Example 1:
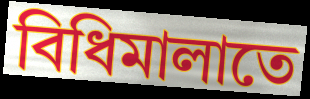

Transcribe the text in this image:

বিধিমালাতে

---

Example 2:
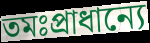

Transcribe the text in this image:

তমঃপ্রাধান্যে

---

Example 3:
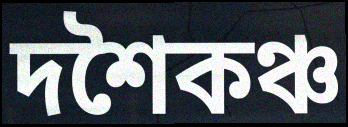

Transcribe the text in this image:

দশৈকঞ্চ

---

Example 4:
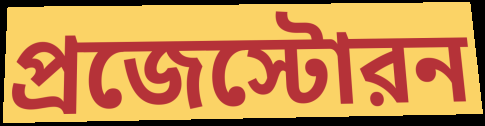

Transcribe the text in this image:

প্রজেস্টোরন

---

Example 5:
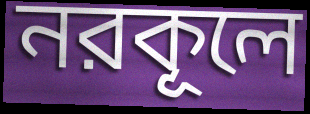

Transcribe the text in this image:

নরকূলে